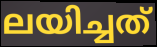
ലയിച്ചത്